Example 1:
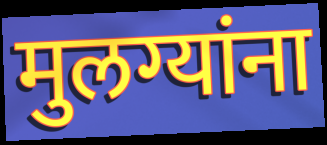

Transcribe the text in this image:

मुलग्यांना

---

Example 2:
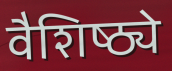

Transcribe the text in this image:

वैशिष्ठ्ये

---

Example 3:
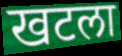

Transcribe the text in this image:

खटला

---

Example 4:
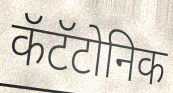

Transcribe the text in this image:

कॅटॅटोनिक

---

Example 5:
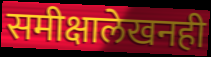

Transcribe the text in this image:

समीक्षालेखनही